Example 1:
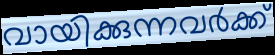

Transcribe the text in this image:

വായിക്കുന്നവർക്ക്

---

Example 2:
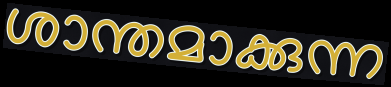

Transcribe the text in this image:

ശാന്തമാക്കുന്ന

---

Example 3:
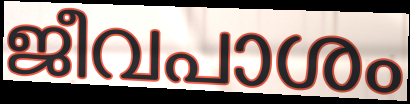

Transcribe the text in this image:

ജീവപാശം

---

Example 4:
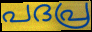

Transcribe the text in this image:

പദപ്ര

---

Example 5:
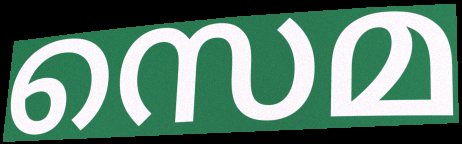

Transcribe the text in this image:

സെമ